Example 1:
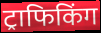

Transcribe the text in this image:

ट्राफिकिंग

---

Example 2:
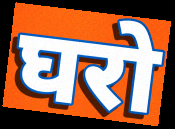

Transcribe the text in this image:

घरो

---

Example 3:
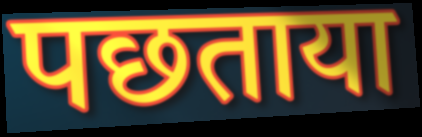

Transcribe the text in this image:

पछताया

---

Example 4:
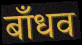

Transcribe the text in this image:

बाँधव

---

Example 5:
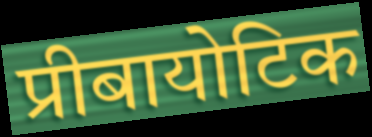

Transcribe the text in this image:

प्रीबायोटिक